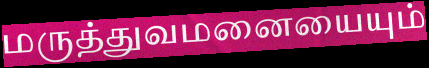
மருத்துவமனையையும்